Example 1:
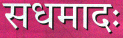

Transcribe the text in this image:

सधमादः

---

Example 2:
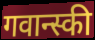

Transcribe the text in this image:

गवान्स्की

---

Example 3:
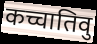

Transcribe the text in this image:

कच्चातिवु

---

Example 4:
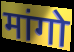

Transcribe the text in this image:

मांगो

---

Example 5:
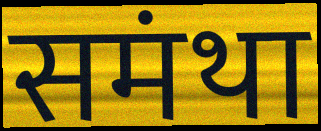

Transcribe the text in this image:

समंथा